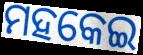
ମହକେଇ